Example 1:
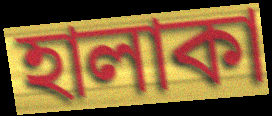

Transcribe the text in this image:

হালাকা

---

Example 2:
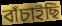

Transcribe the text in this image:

বাঁচাইছি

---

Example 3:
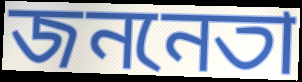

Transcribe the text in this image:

জননেতা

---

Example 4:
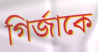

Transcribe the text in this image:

গির্জাকে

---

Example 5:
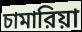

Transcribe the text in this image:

চামারিয়া